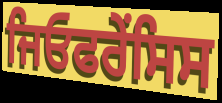
ਜਿਓਫਰੇਂਸਿਸ